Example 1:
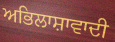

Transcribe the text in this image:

ਅਭਿਲਾਸ਼ਾਵਾਦੀ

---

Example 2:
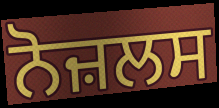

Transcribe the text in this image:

ਨੋਜ਼ਲਸ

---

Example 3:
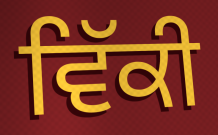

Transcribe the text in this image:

ਵਿੱਕੀ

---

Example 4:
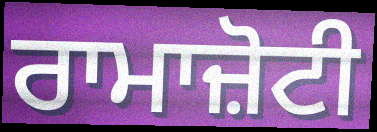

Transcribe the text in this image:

ਰਾਮਾਜ਼ੋਟੀ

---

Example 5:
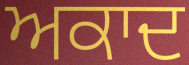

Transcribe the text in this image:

ਅਕਾਦ